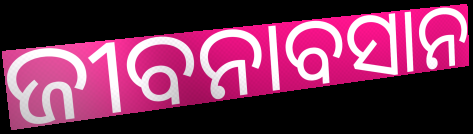
ଜୀବନାବସାନ